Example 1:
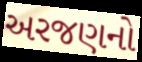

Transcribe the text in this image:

અરજણનો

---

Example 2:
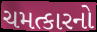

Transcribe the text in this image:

ચમત્કારનો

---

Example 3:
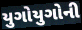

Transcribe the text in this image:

યુગોયુગોની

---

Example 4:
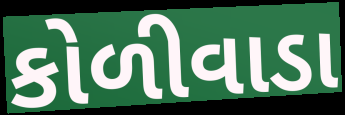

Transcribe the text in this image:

કોળીવાડા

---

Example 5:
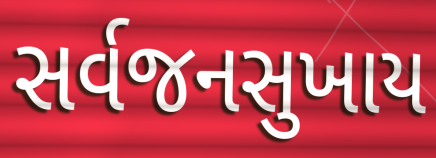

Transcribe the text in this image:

સર્વજનસુખાય